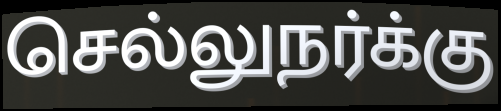
செல்லுநர்க்கு